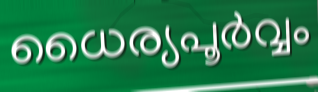
ധൈര്യപൂർവ്വം